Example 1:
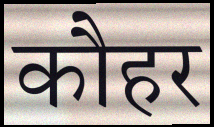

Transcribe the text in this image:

कौहर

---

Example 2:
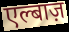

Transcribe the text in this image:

एल्बाज़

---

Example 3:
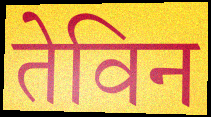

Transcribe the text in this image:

तेविन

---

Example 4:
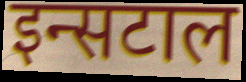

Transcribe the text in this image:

इन्सटाल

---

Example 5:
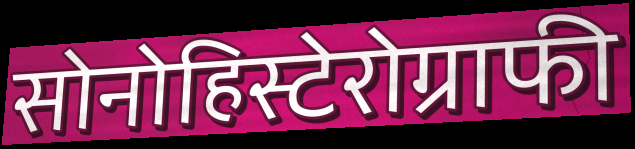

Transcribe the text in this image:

सोनोहिस्टेरोग्राफी